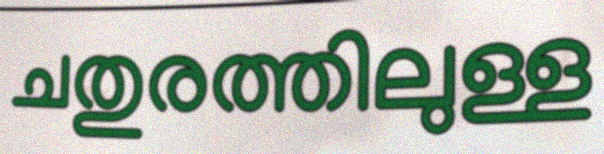
ചതുരത്തിലുള്ള